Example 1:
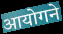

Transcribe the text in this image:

आयोगने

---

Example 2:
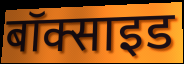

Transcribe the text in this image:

बॉक्साइड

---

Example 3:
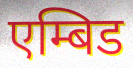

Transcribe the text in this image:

एम्बिड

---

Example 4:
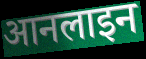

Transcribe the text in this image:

आनलाइन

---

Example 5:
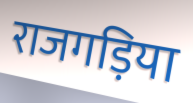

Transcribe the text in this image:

राजगड़िया